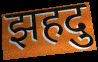
झहदु